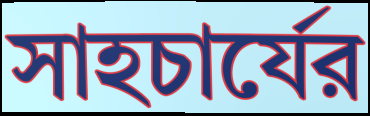
সাহচার্যের